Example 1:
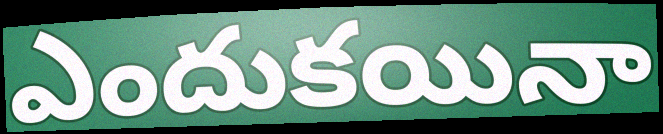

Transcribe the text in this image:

ఎందుకయినా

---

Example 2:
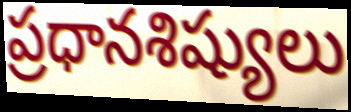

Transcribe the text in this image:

ప్రధానశిష్యులు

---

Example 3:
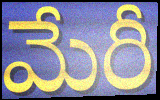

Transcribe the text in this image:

మేరీ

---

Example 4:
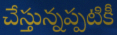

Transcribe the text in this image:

చేస్తున్నప్పటికీ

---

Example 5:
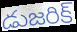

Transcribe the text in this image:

డుజరిక్